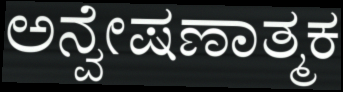
ಅನ್ವೇಷಣಾತ್ಮಕ